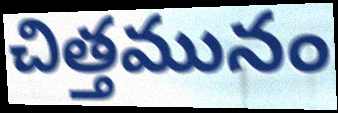
చిత్తమునం